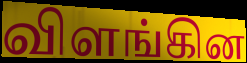
விளங்கின